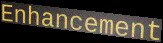
Enhancement